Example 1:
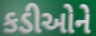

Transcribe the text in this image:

કડીઓને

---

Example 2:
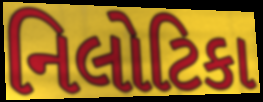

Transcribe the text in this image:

નિલોટિકા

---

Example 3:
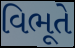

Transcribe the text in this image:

વિભૂતે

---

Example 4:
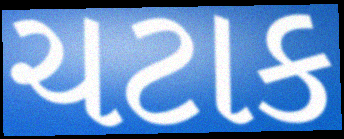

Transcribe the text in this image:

ચટાક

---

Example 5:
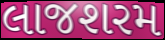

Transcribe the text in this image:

લાજશરમ